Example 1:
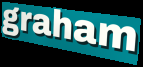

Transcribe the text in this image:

graham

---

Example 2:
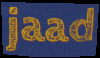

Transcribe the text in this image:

jaad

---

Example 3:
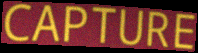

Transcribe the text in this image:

CAPTURE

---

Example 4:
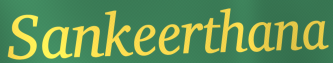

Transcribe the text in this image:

Sankeerthana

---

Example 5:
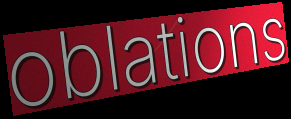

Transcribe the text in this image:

oblations